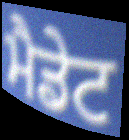
ਮੈਡੇਟ